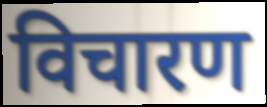
विचारण